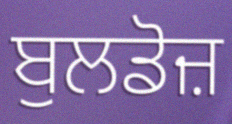
ਬੁਲਡੋਜ਼